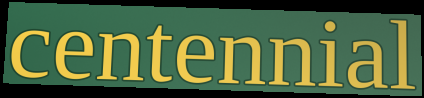
centennial